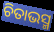
ଚିତାଭସ୍ମ